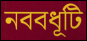
নববধূটি